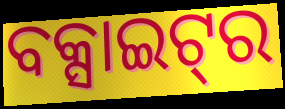
ବକ୍ସାଇଟ୍‌ର